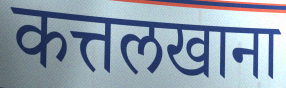
कत्तलखाना